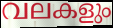
വലകളും